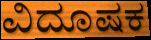
ವಿದೂಷಕ